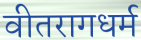
वीतरागधर्म